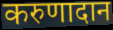
करुणादान